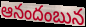
ఆనందంబున